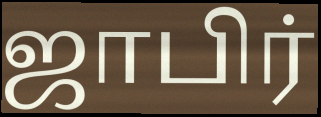
ஜாபிர்